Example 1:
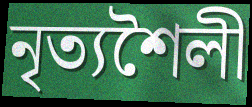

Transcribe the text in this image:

নৃত্যশৈলী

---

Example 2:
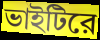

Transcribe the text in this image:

ভাইটিরে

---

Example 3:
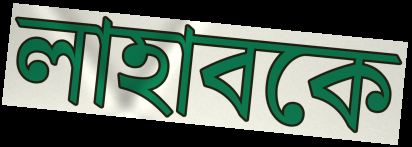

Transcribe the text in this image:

লাহাবকে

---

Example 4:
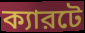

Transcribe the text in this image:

ক্যারটে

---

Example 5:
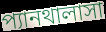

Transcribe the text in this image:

প্যানথালাসা